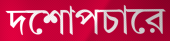
দশোপচারে